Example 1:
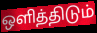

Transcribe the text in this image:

ஒளித்திடும்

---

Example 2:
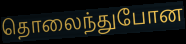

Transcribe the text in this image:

தொலைந்துபோன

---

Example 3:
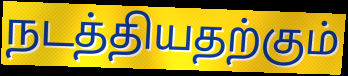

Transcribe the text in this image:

நடத்தியதற்கும்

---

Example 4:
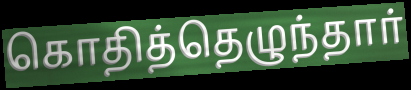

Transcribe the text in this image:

கொதித்தெழுந்தார்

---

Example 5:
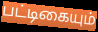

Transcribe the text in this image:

பட்டிகையும்